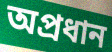
অপ্ৰধান